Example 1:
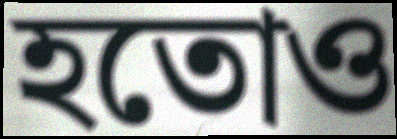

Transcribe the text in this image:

হতোও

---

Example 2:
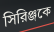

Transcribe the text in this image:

সিরিঞ্জকে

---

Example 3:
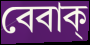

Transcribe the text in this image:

বেবাক্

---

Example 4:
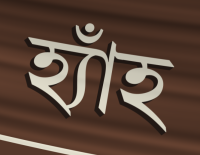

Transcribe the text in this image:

হ্যাঁহ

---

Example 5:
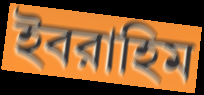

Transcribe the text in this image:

ইবরাহিম